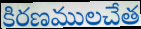
కిరణములచేత